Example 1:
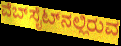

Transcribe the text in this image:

ವೆಬ್‌ಸೈಟ್‌ನಲ್ಲಿರುವ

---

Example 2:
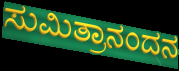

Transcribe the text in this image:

ಸುಮಿತ್ರಾನಂದನ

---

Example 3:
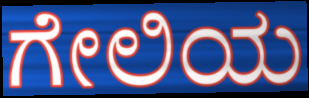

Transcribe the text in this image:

ಗೇಲಿಯ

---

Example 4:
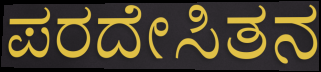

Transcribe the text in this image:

ಪರದೇಸಿತನ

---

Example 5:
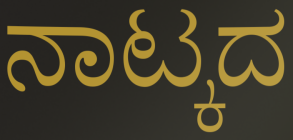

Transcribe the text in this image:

ನಾಟ್ಕದ